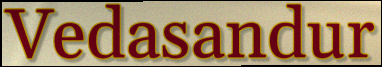
Vedasandur